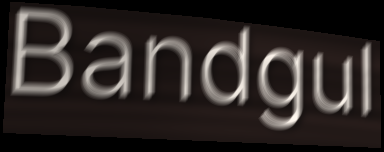
Bandgul